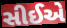
સીઈએ